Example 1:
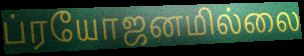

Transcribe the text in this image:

ப்ரயோஜனமில்லை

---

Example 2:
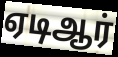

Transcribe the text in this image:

ஏடிஆர்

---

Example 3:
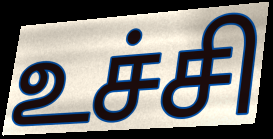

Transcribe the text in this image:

உச்சி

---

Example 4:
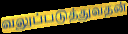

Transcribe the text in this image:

வலுப்படுத்துவதன்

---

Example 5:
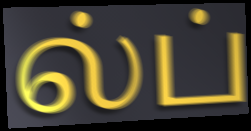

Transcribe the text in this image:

ல்ப்